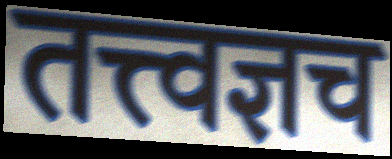
तत्त्वज्ञच